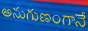
అనుగుణంగానే